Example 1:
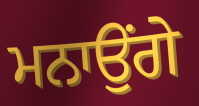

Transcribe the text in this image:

ਮਨਾਉਂਗੇ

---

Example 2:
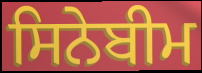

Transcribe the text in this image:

ਸਿਨੇਬੀਮ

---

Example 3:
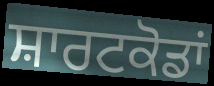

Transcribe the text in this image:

ਸ਼ਾਰਟਕੋਡਾਂ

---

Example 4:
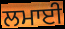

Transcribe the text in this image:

ਲਮਾਈ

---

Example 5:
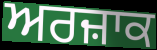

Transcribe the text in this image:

ਅਰਜ਼ਾਕ